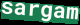
sargam